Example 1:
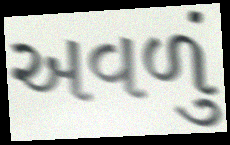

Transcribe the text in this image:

અવળું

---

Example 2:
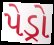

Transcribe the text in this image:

પેડ્રો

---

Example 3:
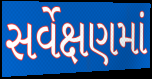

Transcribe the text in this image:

સર્વેક્ષણમાં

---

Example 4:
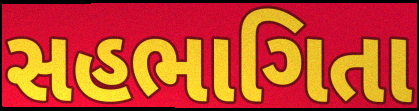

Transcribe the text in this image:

સહભાગિતા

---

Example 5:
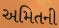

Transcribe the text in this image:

અમિતની